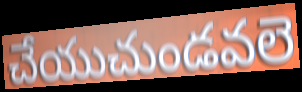
చేయుచుండవలె